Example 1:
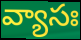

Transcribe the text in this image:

వ్యాసః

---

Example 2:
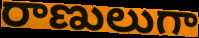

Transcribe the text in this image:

రాణులుగా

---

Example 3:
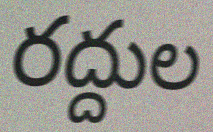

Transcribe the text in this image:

రద్దుల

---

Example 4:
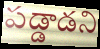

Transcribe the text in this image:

పడ్డాడని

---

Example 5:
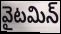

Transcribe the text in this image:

వైటమిన్